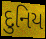
દુનિય